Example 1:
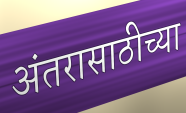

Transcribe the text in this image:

अंतरासाठीच्या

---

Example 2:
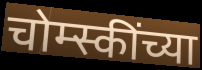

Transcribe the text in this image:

चोम्स्कींच्या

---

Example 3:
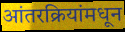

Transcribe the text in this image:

आंतरक्रियांमधून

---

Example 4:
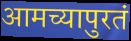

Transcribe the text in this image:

आमच्यापुरतं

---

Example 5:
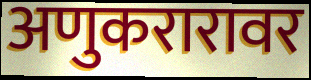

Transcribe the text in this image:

अणुकरारावर